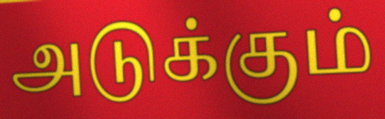
அடுக்கும்